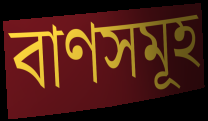
বাণসমূহ